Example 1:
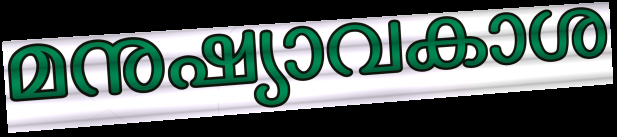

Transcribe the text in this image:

മനുഷ്യാവകാശ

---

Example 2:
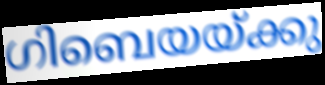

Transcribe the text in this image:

ഗിബെയയ്ക്കു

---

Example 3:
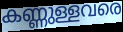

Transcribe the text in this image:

കണ്ണുള്ളവരെ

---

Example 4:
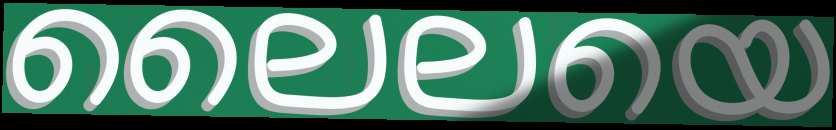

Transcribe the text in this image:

ലൈലയെ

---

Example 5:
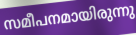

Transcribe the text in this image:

സമീപനമായിരുന്നു